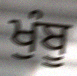
ਖੁੰਬੂ